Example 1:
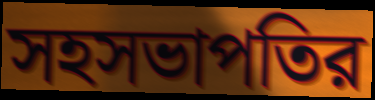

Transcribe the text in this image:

সহসভাপতির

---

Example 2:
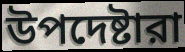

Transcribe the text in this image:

উপদেষ্টারা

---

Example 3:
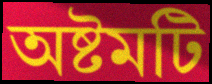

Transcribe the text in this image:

অষ্টমটি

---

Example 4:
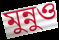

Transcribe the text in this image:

মুন্নুও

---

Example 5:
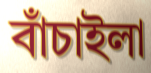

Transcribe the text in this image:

বাঁচাইলা